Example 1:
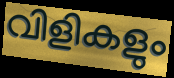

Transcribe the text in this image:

വിളികളും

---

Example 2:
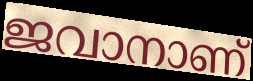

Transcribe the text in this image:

ജവാനാണ്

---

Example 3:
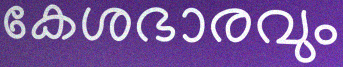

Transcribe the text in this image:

കേശഭാരവും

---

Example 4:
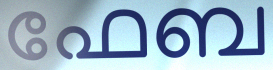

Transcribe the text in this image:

ഫേബ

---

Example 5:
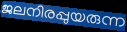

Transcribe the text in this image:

ജലനിരപ്പുയരുന്ന